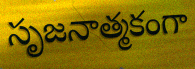
సృజనాత్మకంగా